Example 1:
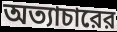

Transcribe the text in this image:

অত্যাচারের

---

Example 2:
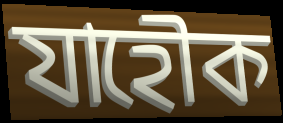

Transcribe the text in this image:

যাহৌক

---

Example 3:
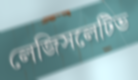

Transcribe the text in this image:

লেজিসলেটিভ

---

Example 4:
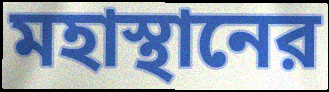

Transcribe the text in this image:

মহাস্থানের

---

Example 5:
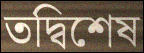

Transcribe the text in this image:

তদ্বিশেষ